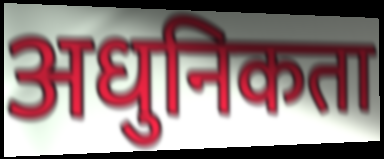
अधुनिकता